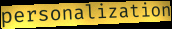
personalization